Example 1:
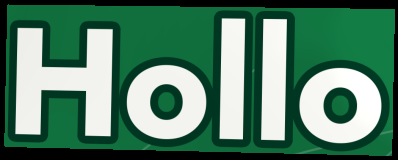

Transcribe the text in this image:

Hollo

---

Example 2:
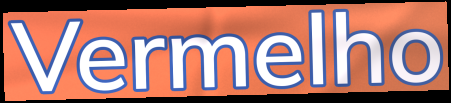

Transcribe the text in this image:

Vermelho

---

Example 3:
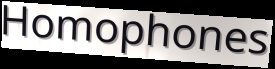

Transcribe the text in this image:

Homophones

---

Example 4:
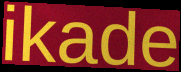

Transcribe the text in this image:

ikade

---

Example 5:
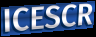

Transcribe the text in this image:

ICESCR